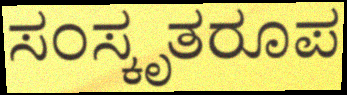
ಸಂಸ್ಕೃತರೂಪ